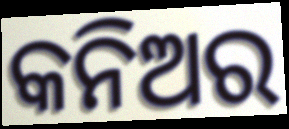
କନିଅର